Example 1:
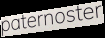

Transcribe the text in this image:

paternoster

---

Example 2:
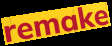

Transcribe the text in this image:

remake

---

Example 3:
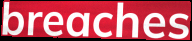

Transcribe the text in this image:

breaches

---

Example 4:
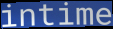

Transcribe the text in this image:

intime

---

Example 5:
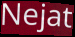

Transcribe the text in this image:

Nejat